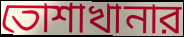
তোশাখানার